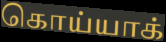
கொய்யாக்